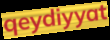
qeydiyyat